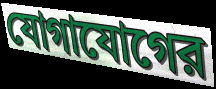
যোগাযোগের